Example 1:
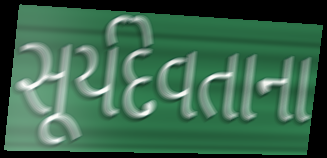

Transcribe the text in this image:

સૂર્યદેવતાના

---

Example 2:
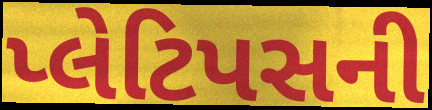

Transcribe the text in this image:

પ્લેટિપસની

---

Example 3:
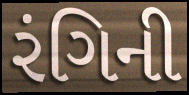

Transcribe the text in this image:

રંગિની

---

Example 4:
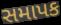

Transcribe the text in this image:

સમાપક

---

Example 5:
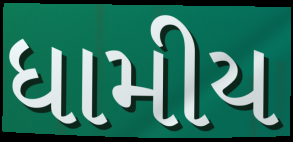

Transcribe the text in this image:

ધામીય